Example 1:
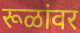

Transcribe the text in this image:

रूळांवर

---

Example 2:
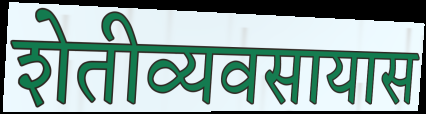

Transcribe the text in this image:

शेतीव्यवसायास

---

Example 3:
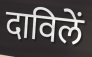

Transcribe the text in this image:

दाविलें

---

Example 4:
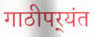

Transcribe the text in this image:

गाठीपर्यंत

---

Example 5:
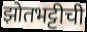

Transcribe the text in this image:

झोतभट्टीची